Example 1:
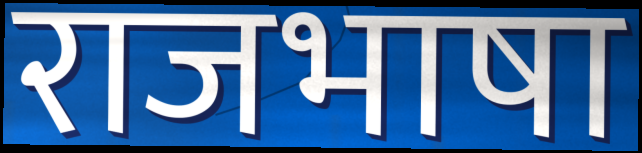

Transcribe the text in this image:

राजभाषा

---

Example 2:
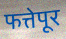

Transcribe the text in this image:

फत्तेपूर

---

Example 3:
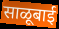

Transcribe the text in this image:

साळूबाई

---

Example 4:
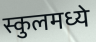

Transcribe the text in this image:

स्कुलमध्ये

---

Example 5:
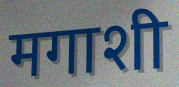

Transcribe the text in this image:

मगाशी